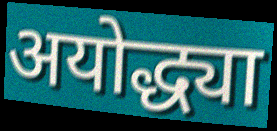
अयोद्ध्या